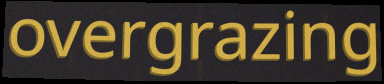
overgrazing